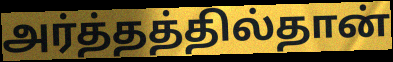
அர்த்தத்தில்தான்